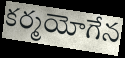
కర్మయోగేన